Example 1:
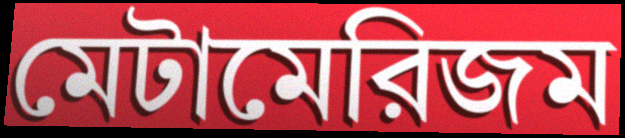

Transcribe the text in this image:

মেটামেরিজম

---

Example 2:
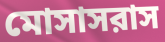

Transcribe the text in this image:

মোসাসরাস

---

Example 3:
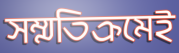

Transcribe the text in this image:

সম্মতিক্রমেই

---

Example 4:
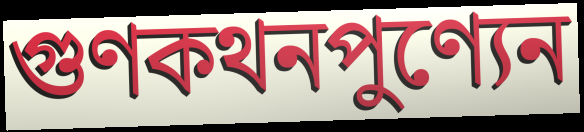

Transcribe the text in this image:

গুণকথনপুণ্যেন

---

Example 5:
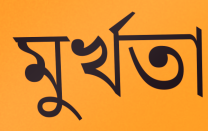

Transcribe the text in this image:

মুর্খতা